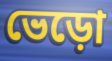
ভেড়ো